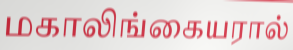
மகாலிங்கையரால்